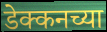
डेक्कनच्या